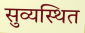
सुव्यस्थित